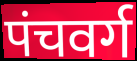
पंचवर्ग